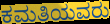
ಕಮತಿಯವರು